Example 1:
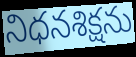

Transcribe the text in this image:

నిధనశిక్షను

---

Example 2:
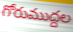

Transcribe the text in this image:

గోరుముద్దల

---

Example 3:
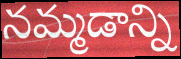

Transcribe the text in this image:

నమ్మడాన్ని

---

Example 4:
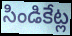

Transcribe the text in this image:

సిండికేట్ల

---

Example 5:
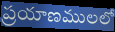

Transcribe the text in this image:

ప్రయాణములలో